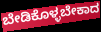
ಬೇಡಿಕೊಳ್ಳಬೇಕಾದ